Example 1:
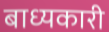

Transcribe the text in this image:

बाध्‍यकारी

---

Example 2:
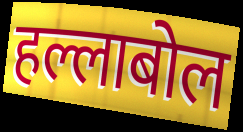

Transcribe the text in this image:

हल्लाबोल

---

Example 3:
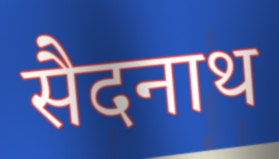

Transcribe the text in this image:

सैदनाथ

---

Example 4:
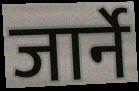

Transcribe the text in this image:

जार्ने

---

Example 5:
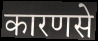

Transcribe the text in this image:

कारणसे